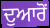
ਦੁਆਰੋਂ